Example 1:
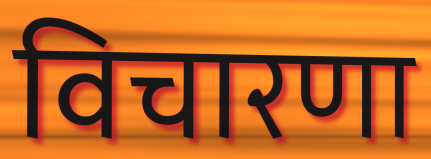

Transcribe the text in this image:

विचारणा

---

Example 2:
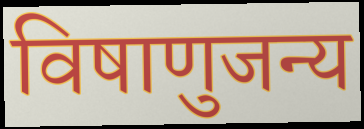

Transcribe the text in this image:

विषाणुजन्य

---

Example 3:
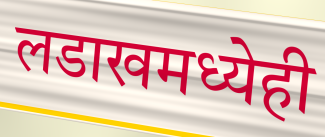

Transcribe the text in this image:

लडाखमध्येही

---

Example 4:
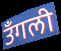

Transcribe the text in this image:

उँगली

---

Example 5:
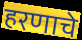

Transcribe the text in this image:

हरणाचे